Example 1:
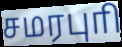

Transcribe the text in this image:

சமரபுரி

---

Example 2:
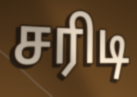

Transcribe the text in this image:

சரிடி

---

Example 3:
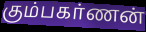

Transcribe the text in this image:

கும்பகர்ணன்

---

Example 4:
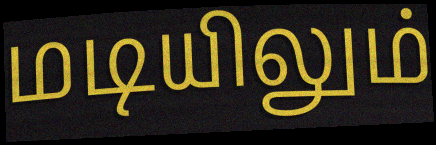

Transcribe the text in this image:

மடியிலும்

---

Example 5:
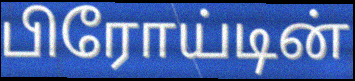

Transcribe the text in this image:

பிரோய்டின்